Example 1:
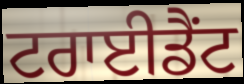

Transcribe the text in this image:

ਟਰਾਈਡੈਂਟ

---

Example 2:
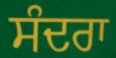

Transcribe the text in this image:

ਸੰਦਰਾ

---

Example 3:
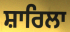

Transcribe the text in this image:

ਸ਼ਾਰਿਲਾ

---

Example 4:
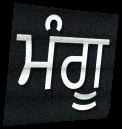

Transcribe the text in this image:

ਮੰਗੂ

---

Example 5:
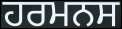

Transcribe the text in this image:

ਹਰਮਨਸ